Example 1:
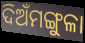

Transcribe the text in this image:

ଦିଅଁମଙ୍ଗୁଳା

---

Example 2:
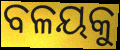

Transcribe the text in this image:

ବଳୟକୁ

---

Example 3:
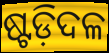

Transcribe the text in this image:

ଷ୍ଟଡ଼ିଦଳ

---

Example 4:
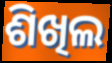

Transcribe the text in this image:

ଶିଖିଲ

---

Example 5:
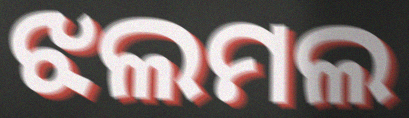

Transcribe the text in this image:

ଝଲମଲ